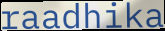
raadhika